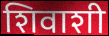
शिवाशी